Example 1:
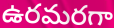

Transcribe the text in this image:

ఉరమరగా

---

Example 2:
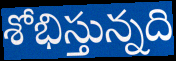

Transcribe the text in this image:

శోభిస్తున్నది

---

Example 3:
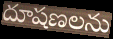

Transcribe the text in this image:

దూషణలను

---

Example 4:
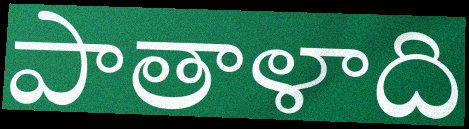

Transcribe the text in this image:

పాతాళాది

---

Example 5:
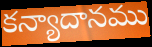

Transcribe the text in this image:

కన్యాదానము